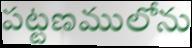
పట్టణములోను